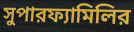
সুপারফ্যামিলির